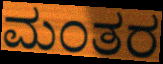
ಮಂತರ